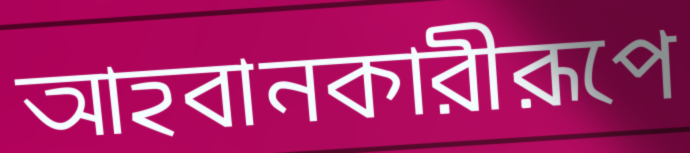
আহবানকারীরূপে